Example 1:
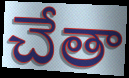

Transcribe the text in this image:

చేతా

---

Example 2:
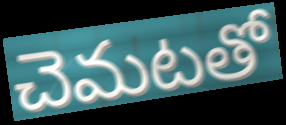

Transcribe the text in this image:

చెమటతో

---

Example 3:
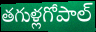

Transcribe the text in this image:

తగుళ్లగోపాల్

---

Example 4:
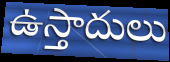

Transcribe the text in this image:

ఉస్తాదులు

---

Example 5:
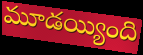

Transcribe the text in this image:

మూడయ్యింది